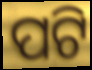
ପଟି